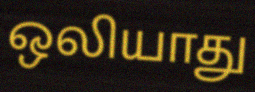
ஒலியாது